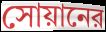
সোয়ানের